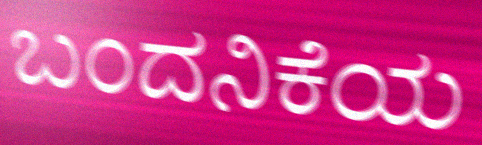
ಬಂದನಿಕೆಯ